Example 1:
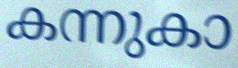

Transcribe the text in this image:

കന്നുകാ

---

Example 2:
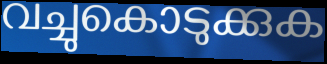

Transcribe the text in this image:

വച്ചുകൊടുക്കുക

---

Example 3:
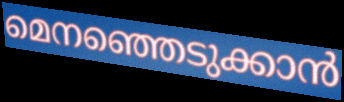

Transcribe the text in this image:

മെനഞ്ഞെടുക്കാൻ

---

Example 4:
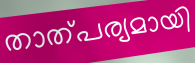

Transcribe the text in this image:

താത്പര്യമായി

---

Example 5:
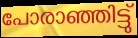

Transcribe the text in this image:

പോരാഞ്ഞിട്ടു്